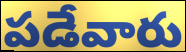
పడేవారు